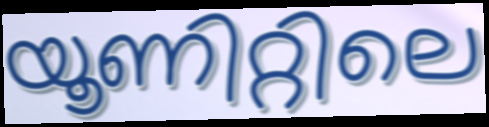
യൂണിറ്റിലെ